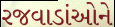
રજવાડાંઓને